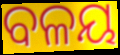
ବଳୟ